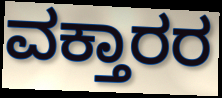
ವಕ್ತಾರರ